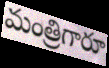
మంత్రిగారూ